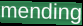
mending